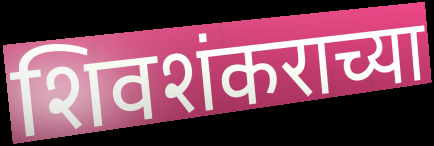
शिवशंकराच्या